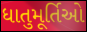
ધાતુમૂર્તિઓ